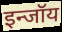
इन्जॉय